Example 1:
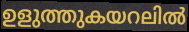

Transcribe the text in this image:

ഉളുത്തുകയറലിൽ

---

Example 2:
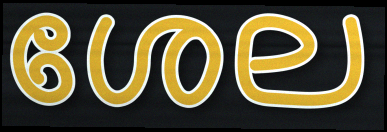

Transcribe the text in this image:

ശേല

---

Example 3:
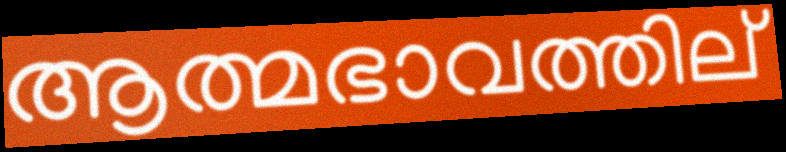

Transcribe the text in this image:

ആത്മഭാവത്തില്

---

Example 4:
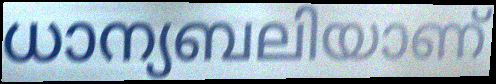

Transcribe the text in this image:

ധാന്യബലിയാണ്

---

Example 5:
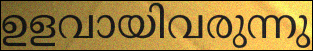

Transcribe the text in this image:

ഉളവായിവരുന്നു